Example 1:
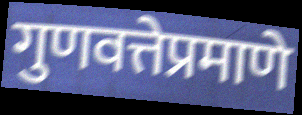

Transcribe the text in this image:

गुणवत्तेप्रमाणे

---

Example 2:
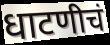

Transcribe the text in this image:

धाटणीचं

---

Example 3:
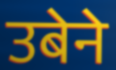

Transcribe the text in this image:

उबेने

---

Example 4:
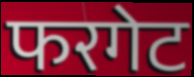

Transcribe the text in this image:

फरगेट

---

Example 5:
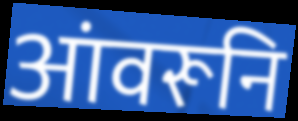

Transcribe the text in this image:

आंवरूनि